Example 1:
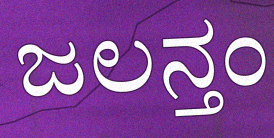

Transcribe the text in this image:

ಜಲನ್ತಂ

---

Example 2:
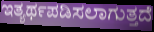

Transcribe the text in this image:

ಇತ್ಯರ್ಥಪಡಿಸಲಾಗುತ್ತದೆ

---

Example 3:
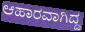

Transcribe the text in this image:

ಆಹಾರವಾಗಿದ್ದ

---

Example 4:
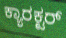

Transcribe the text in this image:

ಕ್ಯಾರಕ್ಟರ್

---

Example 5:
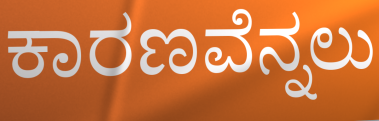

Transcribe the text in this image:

ಕಾರಣವೆನ್ನಲು